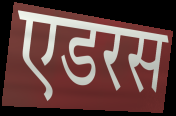
एडरस